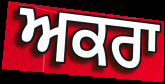
ਅਕਰਾ